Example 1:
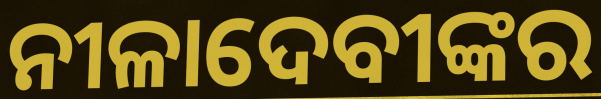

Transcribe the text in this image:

ନୀଳାଦେବୀଙ୍କର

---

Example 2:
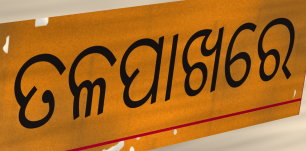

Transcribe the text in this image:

ତଳପାଖରେ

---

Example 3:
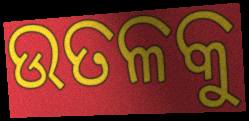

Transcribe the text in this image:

ଉତଳକୁ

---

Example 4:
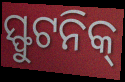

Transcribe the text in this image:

ସ୍ଫୁଟନିକ୍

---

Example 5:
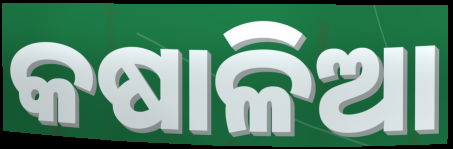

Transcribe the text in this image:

କଷାଳିଆ